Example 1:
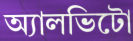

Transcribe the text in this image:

অ্যালভিটো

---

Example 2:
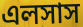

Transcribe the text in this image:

এলসাস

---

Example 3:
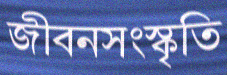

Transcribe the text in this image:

জীবনসংস্কৃতি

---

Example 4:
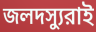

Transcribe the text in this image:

জলদস্যুরাই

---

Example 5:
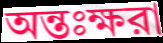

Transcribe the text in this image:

অন্তঃক্ষরা